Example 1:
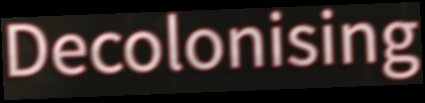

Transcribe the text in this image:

Decolonising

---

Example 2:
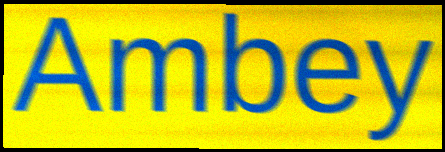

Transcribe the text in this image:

Ambey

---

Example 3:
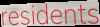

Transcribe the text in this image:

residents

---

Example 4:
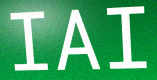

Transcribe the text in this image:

IAI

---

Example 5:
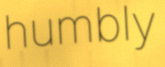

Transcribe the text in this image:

humbly